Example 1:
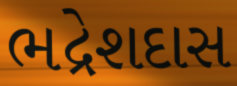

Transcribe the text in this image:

ભદ્રેશદાસ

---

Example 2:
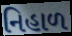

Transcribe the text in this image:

નિહાળ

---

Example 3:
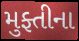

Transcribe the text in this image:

મુફ્તીના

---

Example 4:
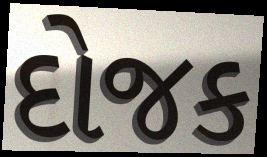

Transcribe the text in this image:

દોજક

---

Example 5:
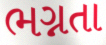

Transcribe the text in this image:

ભગ્નતા